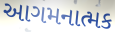
આગમનાત્મક